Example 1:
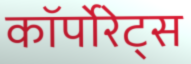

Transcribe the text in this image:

कॉर्पोरेट्स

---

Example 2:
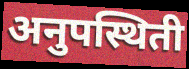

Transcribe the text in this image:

अनुपस्थिती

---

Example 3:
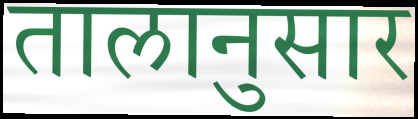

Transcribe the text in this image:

तालानुसार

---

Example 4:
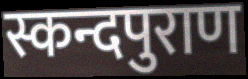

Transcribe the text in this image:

स्कन्दपुराण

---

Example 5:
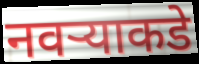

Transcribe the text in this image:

नवऱ्याकडे